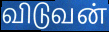
விடுவன்